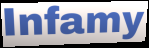
Infamy